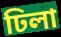
ঢিলা